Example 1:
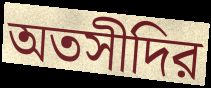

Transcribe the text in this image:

অতসীদির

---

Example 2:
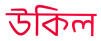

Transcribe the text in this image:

উকিল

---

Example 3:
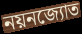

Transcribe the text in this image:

নয়নজ্যোত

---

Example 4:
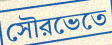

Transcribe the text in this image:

সৌরভেতে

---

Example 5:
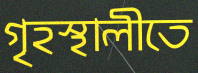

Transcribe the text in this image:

গৃহস্থালীতে